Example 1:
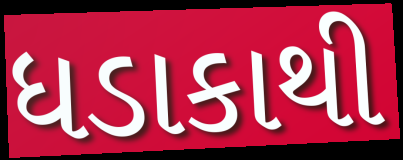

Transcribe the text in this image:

ધડાકાથી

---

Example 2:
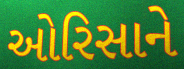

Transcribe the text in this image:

ઓરિસાને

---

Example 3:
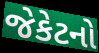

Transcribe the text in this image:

જેકેટનો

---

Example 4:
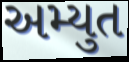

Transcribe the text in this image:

અમ્યુત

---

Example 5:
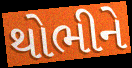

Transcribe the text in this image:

થોભીને